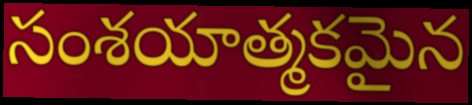
సంశయాత్మకమైన